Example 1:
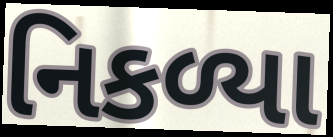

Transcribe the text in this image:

નિકળ્યા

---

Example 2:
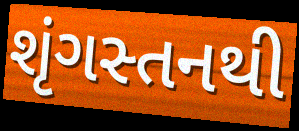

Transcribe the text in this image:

શૃંગસ્તનથી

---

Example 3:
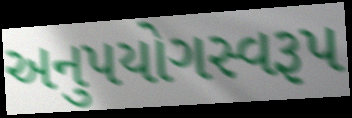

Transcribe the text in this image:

અનુપયોગસ્વરૂપ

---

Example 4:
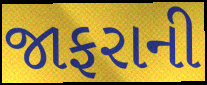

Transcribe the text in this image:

જાફરાની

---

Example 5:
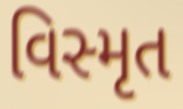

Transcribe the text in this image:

વિસ્મૃત